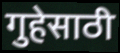
गुहेसाठी